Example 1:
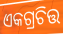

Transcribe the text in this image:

ଏକଗ୍ରଚିତ୍ତ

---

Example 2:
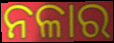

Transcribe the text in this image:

ନଳାର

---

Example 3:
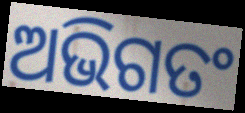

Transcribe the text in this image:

ଅଭିଗତଂ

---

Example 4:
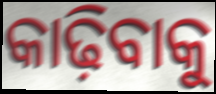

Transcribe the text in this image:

କାଢ଼ିବାକୁ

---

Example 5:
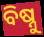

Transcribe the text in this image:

ବିଷ୍ନୁ